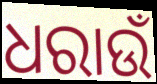
ଧରାଉଁ